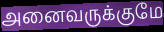
அனைவருக்குமே